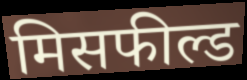
मिसफील्ड